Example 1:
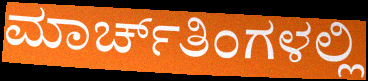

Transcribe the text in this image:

ಮಾರ್ಚ್‌ತಿಂಗಳಲ್ಲಿ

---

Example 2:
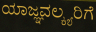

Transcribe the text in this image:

ಯಾಜ್ಞವಲ್ಕ್ಯರಿಗೆ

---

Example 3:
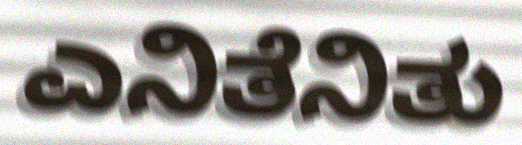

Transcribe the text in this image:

ಎನಿತೆನಿತು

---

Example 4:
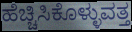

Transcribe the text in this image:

ಹೆಚ್ಚಿಸಿಕೊಳ್ಳುವತ್ತ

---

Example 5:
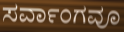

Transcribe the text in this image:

ಸರ್ವಾಂಗವೂ